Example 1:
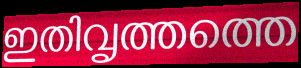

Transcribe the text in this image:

ഇതിവൃത്തത്തെ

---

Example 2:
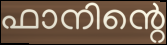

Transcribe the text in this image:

ഫാനിന്റെ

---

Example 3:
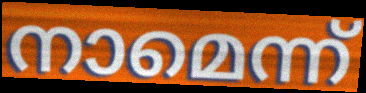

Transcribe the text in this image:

നാമെന്ന്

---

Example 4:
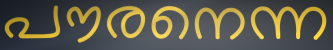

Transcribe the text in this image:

പൗരനെന്ന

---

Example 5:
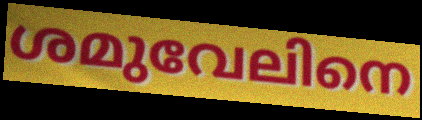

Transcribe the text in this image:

ശമുവേലിനെ